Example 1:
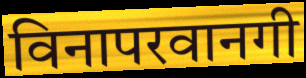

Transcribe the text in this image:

विनापरवानगी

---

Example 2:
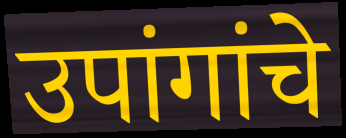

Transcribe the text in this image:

उपांगांचे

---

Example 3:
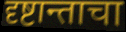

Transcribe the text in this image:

दृष्टान्ताचा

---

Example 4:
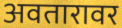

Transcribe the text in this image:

अवतारावर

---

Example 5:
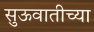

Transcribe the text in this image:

सुऊवातीच्या